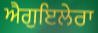
ਐਗੁਇਲੇਰਾ